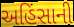
અહિંસાની